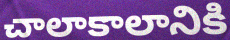
చాలాకాలానికి